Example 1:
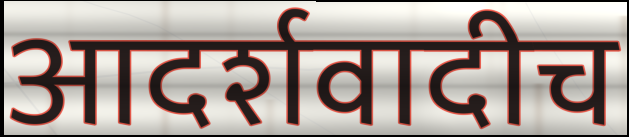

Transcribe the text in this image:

आदर्शवादीच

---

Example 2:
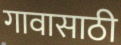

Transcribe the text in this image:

गावासाठी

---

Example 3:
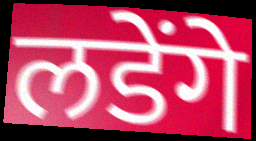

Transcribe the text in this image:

लडेंगे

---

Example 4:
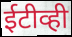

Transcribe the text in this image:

ईटीव्ही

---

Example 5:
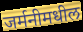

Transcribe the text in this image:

जर्मनीमधील